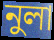
নুলা